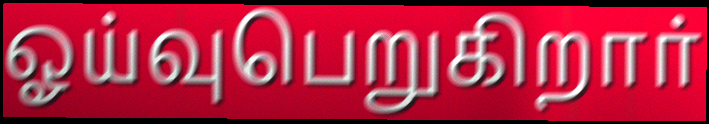
ஓய்வுபெறுகிறார்